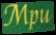
Mpu